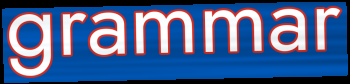
grammar